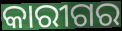
କାରୀଗର